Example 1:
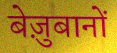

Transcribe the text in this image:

बेज़ुबानों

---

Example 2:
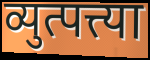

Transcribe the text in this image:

व्युत्पत्त्या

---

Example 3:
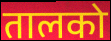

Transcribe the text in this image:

तालको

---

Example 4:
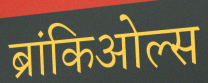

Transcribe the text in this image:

ब्रांकिओल्स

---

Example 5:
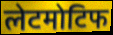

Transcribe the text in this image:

लेटमोटिफ